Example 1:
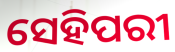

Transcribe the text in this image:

ସେହିପରୀ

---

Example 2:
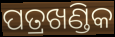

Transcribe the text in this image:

ପତ୍ରଖଣ୍ଡିକ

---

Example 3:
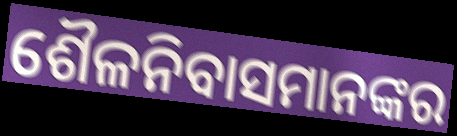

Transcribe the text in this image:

ଶୈଳନିବାସମାନଙ୍କର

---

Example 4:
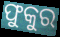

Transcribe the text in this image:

ଫୁକୁର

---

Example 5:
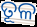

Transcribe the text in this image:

ତୂଳ